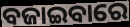
ବଜାଇବାରେ